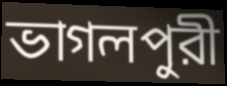
ভাগলপুরী